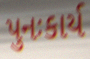
પુનઃકાર્ય